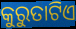
କୁରୁତାଟିଏ